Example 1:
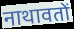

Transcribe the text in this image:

नाथावतों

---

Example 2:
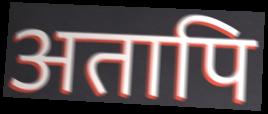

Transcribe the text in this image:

अतापि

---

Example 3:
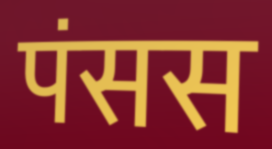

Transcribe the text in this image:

पंसस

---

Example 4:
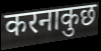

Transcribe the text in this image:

करनाकुछ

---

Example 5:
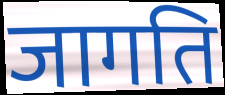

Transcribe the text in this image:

जागति